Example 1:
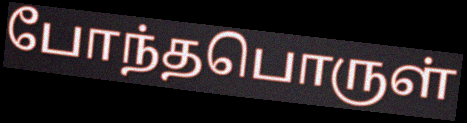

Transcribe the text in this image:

போந்தபொருள்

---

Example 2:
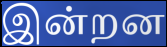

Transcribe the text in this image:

இன்றன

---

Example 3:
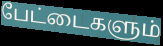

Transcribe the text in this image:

பேட்டைகளும்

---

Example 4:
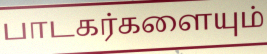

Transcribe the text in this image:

பாடகர்களையும்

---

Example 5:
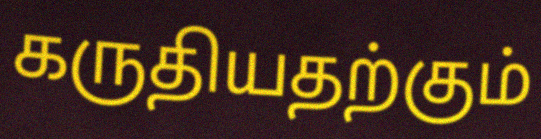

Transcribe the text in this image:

கருதியதற்கும்